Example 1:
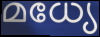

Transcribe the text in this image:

മധ്യേ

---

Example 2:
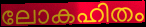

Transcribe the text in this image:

ലോകഹിതം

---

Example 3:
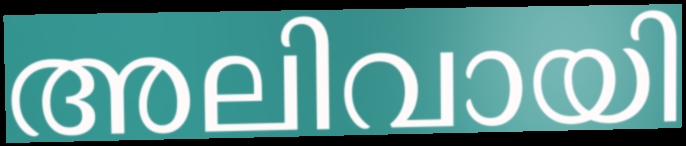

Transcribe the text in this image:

അലിവായി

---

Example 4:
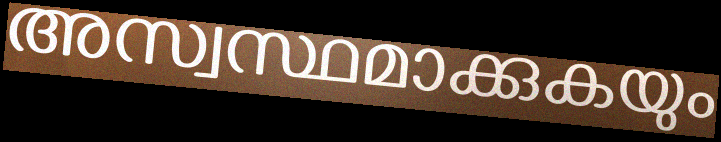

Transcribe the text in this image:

അസ്വസ്ഥമാക്കുകയും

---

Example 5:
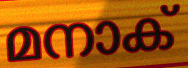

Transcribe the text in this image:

മനാക്